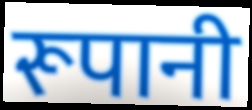
रूपानी